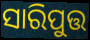
ସାରିପୁତ୍ତ